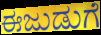
ಈಜುಡುಗೆ